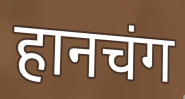
हानचंग